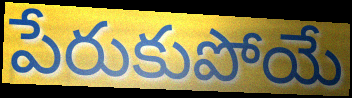
పేరుకుపోయే